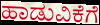
ಹಾಡುವಿಕೆಗೆ